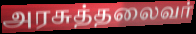
அரசுத்தலைவர்